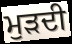
ਮੁੜਦੀ